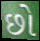
છો